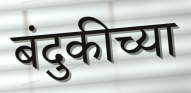
बंदुकीच्या